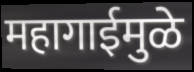
महागाईमुळे